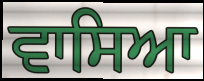
ਵਾਸਿਆ